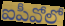
ఐపీవోలో